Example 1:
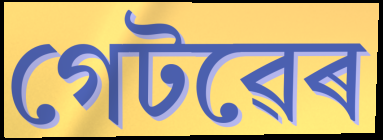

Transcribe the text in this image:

গেটৱেৰ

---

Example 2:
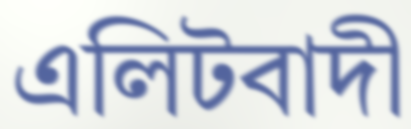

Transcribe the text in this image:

এলিটবাদী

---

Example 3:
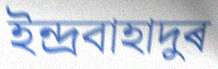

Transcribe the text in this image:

ইন্দ্ৰবাহাদুৰ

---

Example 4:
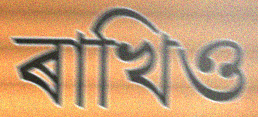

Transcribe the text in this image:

ৰাখিও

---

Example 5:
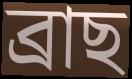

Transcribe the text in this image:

ব্ৰাছ